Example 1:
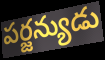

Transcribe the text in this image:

పర్జన్యుడు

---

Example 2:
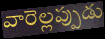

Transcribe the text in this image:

వారెల్లప్పుడు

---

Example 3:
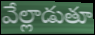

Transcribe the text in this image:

వేల్లాడుతూ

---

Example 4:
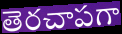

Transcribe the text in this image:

తెరచాపగా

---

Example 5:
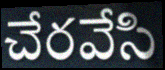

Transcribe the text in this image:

చేరవేసి